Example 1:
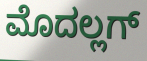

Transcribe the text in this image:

ಮೊದಲ್ಲಗ್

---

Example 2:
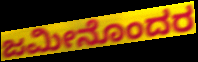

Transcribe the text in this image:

ಜಮೀನೊಂದರ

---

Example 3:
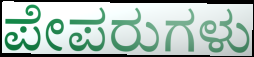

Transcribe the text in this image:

ಪೇಪರುಗಳು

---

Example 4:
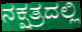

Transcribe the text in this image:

ನಕ್ಷತ್ರದಲ್ಲಿ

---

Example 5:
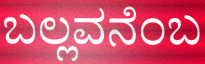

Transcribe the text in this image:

ಬಲ್ಲವನೆಂಬ